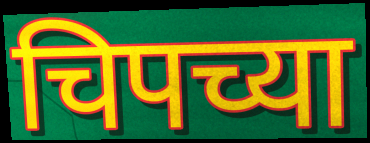
चिपच्या